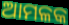
ଆମଳକ